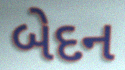
બેદન